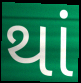
થાં